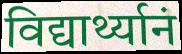
विद्यार्थ्यानं